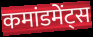
कमांडमेंट्स